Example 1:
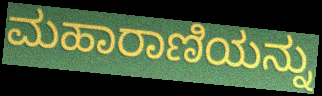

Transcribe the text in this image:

ಮಹಾರಾಣಿಯನ್ನು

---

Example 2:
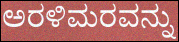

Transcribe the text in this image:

ಅರಳಿಮರವನ್ನು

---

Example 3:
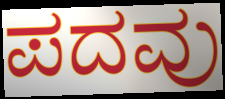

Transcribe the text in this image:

ಪದವು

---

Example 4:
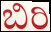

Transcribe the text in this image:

ಬಿರಿ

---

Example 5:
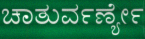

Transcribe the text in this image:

ಚಾತುರ್ವರ್ಣ್ಯೇ